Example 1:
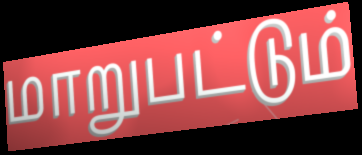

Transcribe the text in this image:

மாறுபட்டும்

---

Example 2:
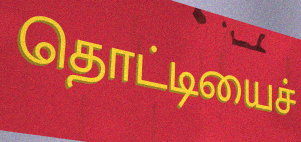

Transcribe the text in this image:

தொட்டியைச்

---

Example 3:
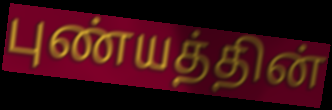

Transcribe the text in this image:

புண்யத்தின்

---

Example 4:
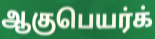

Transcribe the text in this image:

ஆகுபெயர்க்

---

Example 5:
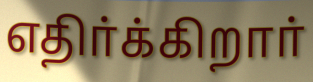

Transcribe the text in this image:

எதிர்க்கிறார்